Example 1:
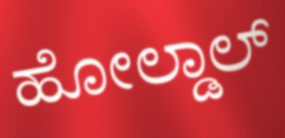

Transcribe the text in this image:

ಹೋಲ್ಡಾಲ್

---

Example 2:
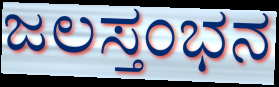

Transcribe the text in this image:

ಜಲಸ್ತಂಭನ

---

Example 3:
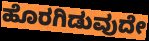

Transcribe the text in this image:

ಹೊರಗಿಡುವುದೇ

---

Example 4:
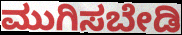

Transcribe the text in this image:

ಮುಗಿಸಬೇಡಿ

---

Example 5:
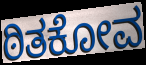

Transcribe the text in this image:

ಠಿತಕೋವ